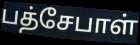
பத்சேபாள்